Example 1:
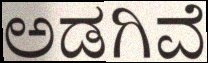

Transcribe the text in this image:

ಅಡಗಿವೆ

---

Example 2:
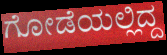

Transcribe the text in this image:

ಗೋಡೆಯಲ್ಲಿದ್ದ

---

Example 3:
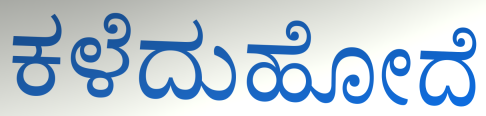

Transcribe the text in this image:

ಕಳೆದುಹೋದೆ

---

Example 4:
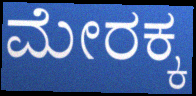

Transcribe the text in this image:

ಮೇರಕ್ಕ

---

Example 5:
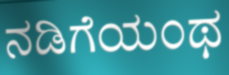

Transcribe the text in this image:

ನಡಿಗೆಯಂಥ